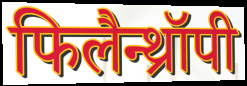
फिलैन्थ्रॉपी